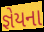
જ્ઞેયના